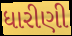
ધારીણી